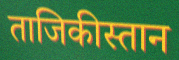
ताजिकीस्तान